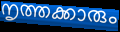
നൃത്തക്കാരും